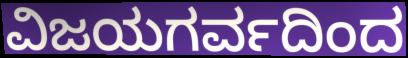
ವಿಜಯಗರ್ವದಿಂದ